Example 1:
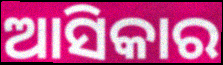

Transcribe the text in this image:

ଆସିକାର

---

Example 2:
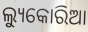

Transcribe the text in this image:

ଲ୍ୟୁକୋରିଆ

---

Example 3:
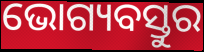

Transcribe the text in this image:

ଭୋଗ୍ୟବସ୍ତୁର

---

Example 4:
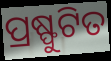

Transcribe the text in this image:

ପ୍ରଷ୍ଫୁଟିତ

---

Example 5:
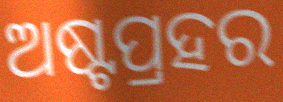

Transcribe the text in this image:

ଅଷ୍ଟପ୍ରହର